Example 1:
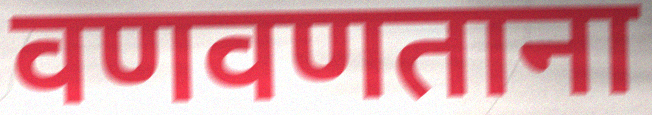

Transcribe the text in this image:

वणवणताना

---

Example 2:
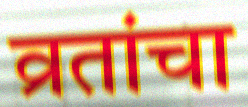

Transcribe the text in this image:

व्रतांचा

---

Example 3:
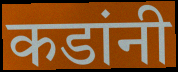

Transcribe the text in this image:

कडांनी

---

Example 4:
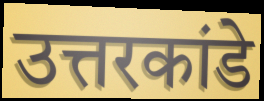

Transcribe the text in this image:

उत्तरकांडे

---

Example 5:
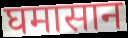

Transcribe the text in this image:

घमासान